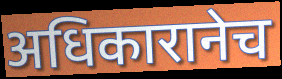
अधिकारानेच